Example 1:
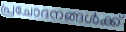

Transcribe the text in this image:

പ്രചോദനങ്ങൾക്ക്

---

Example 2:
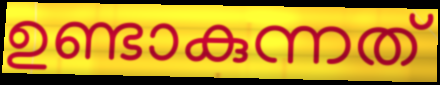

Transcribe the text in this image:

ഉണ്ടാകുന്നത്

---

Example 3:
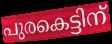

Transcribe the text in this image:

പുരകെട്ടിന്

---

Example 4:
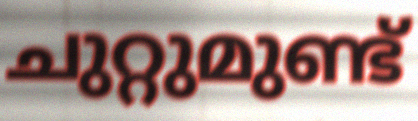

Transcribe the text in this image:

ചുറ്റുമുണ്ട്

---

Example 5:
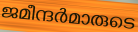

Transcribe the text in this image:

ജമീന്ദർമാരുടെ